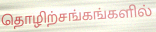
தொழிற்சங்கங்களில்